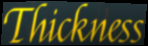
Thickness